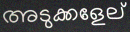
അടുക്കളേല്